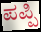
ಪಪ್ಪಿ